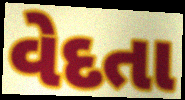
વેદતા